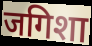
जगिशा